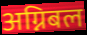
अग्निबल